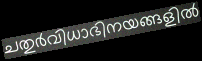
ചതുർവിധാഭിനയങ്ങളിൽ